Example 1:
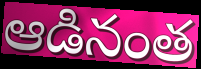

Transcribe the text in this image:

ఆడినంత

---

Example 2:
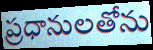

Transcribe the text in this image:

ప్రధానులతోను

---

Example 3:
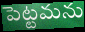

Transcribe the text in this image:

పెట్టమను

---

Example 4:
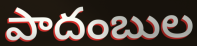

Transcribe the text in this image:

పాదంబుల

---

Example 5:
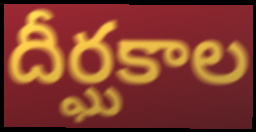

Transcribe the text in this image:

దీర్ఘకాల